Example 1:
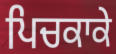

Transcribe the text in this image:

ਪਿਚਕਾਕੇ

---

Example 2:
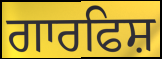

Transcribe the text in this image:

ਗਾਰਫਿਸ਼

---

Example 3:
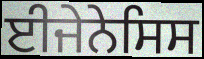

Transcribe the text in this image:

ਈਜੇਨੇਸਿਸ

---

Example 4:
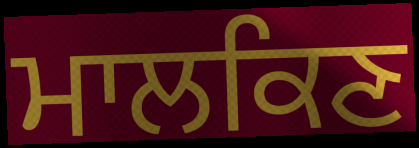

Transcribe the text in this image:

ਮਾਲਕਿਣ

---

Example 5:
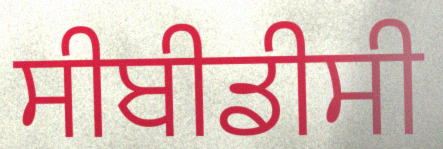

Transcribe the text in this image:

ਸੀਬੀਡੀਸੀ